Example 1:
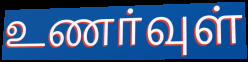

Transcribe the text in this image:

உணர்வுள்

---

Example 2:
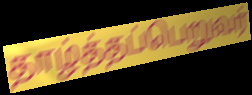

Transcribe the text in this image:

தாழ்த்தப்பெறுவர்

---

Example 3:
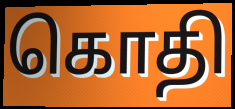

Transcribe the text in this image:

கொதி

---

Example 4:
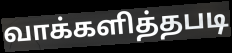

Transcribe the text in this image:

வாக்களித்தபடி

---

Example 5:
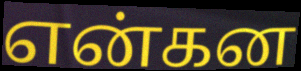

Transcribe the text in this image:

என்கன